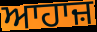
ਆਹਾਜ਼